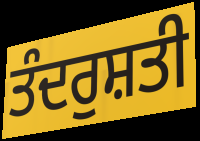
ਤੰਦਰੁਸ਼ਤੀ